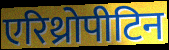
एरिथ्रोपीटिन